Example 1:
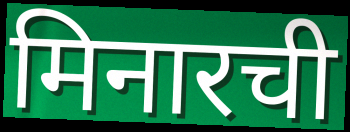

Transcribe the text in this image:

मिनारची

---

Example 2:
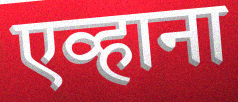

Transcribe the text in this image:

एव्हाना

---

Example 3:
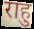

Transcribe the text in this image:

राहु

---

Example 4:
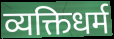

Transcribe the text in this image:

व्यक्तिधर्म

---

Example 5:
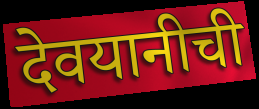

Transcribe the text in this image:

देवयानीची